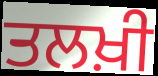
ਤਲਖ਼ੀ